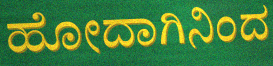
ಹೋದಾಗಿನಿಂದ